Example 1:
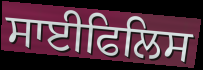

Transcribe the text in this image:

ਸਾਈਫਿਲਿਸ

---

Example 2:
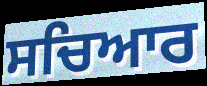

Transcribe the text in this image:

ਸਚਿਆਰ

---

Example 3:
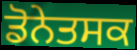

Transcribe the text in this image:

ਡੋਨੇਤਸਕ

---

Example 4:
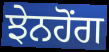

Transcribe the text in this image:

ਝੇਨਹੋਂਗ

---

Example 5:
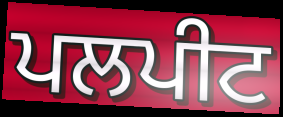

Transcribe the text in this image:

ਪਲਪੀਟ